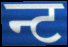
न्ट